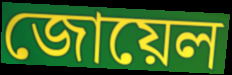
জোয়েল